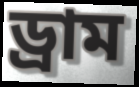
ড্ৰাম